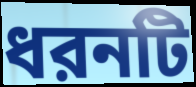
ধরনটি